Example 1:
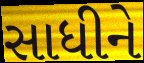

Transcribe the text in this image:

સાધીને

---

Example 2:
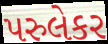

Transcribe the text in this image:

પરુલેકર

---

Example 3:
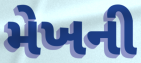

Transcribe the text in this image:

મેખની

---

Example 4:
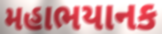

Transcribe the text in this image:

મહાભયાનક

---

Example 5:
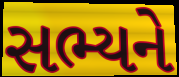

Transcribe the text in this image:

સભ્યને